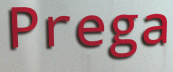
Prega